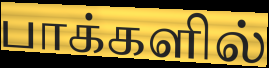
பாக்களில்